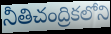
నీతిచంద్రికలోని